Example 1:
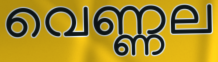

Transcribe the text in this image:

വെണ്ണല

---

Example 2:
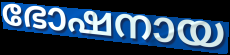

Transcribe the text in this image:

ഭോഷനായ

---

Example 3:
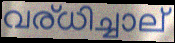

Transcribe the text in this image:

വര്ധിച്ചാല്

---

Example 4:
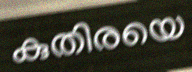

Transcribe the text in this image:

കുതിരയെ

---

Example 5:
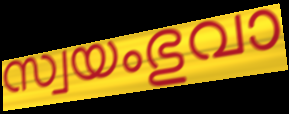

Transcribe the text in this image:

സ്വയംഭുവാ